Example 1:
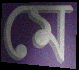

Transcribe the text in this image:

মে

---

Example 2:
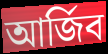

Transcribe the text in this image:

আৰ্জিব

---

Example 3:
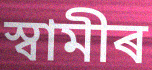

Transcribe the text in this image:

স্বামীৰ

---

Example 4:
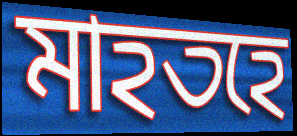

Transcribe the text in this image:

মাহতহে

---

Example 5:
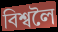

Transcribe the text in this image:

বিশ্বলৈ